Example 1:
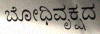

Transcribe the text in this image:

ಬೋಧಿವೃಕ್ಷದ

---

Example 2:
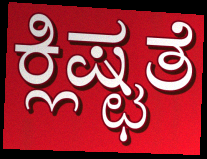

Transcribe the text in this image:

ಕ್ಲಿಷ್ಟತೆ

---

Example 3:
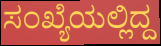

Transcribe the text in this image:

ಸಂಖ್ಯೆಯಲ್ಲಿದ್ದ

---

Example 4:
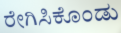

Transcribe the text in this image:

ರೇಗಿಸಿಕೊಂಡು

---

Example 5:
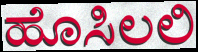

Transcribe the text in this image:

ಹೊಸಿಲಲಿ